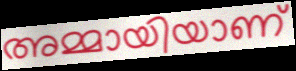
അമ്മായിയാണ്